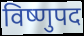
विष्‍णुपद